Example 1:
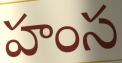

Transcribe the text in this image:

హంస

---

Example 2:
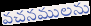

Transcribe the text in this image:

వచనములను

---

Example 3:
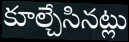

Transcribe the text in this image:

కూల్చేసినట్లు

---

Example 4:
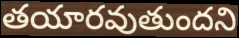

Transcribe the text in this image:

తయారవుతుందని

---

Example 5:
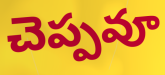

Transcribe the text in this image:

చెప్పవూ